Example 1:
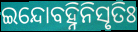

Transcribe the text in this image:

ଇନ୍ଦୋବହ୍ନିନିସୃତିଃ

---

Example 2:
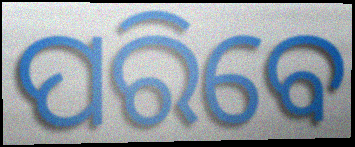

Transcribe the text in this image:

ପରିବେ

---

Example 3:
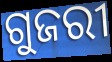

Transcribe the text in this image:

ଗୁଜରୀ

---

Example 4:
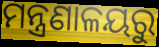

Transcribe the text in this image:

ମନ୍ତ୍ରଣାଳୟରୁ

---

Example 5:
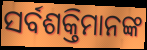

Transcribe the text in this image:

ସର୍ବଶକ୍ତିମାନଙ୍କ